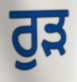
ਰੁੜ